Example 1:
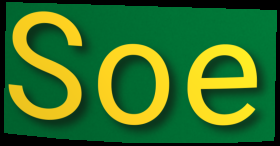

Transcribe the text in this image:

Soe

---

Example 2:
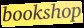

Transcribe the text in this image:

bookshop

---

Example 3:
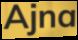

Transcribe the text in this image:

Ajna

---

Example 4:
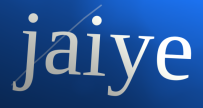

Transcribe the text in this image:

jaiye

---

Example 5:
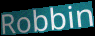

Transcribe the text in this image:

Robbin